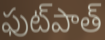
ఫుట్‌పాత్